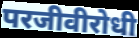
परजीवीरोधी